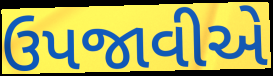
ઉપજાવીએ